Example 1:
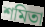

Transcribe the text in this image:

শমিতা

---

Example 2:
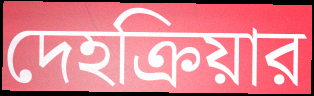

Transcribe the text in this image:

দেহক্রিয়ার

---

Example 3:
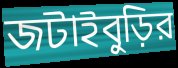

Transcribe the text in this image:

জটাইবুড়ির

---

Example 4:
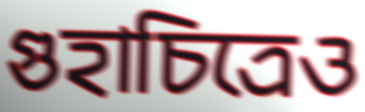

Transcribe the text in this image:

গুহাচিত্রেও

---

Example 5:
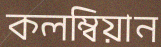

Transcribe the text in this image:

কলম্বিয়ান